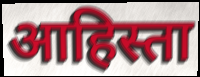
आहिस्ता